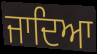
ਜਾਦਿਆ